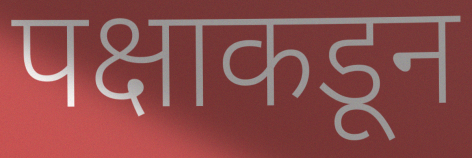
पक्षाकडून